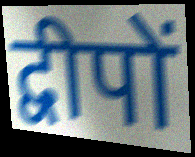
द्वीपों